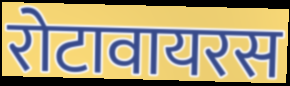
रोटावायरस